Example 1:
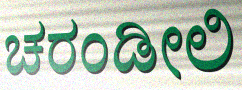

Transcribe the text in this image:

ಚರಂಡೀಲಿ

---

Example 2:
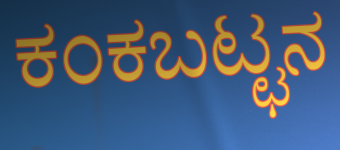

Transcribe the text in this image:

ಕಂಕಬಟ್ಟನ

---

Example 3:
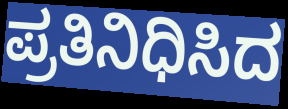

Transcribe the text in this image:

ಪ್ರತಿನಿಧಿಸಿದ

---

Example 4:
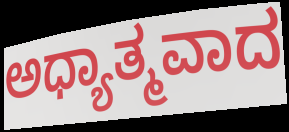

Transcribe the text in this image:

ಅಧ್ಯಾತ್ಮವಾದ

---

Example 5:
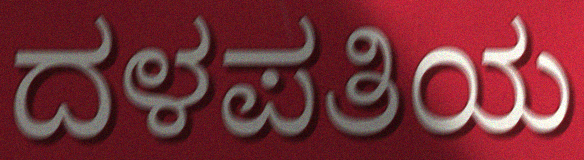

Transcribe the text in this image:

ದಳಪತಿಯ